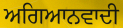
ਅਗਿਆਨਵਾਦੀ